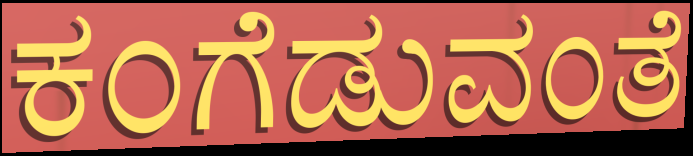
ಕಂಗೆಡುವಂತೆ